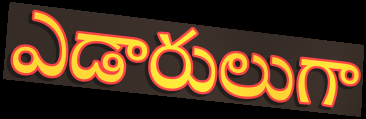
ఎడారులుగా